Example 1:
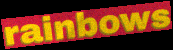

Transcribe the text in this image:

rainbows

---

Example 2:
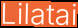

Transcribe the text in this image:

Lilatai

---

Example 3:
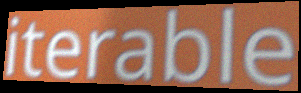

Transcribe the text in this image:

iterable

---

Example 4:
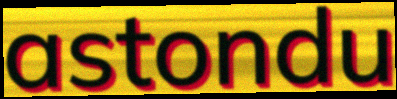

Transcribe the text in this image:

astondu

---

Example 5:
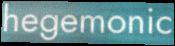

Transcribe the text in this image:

hegemonic